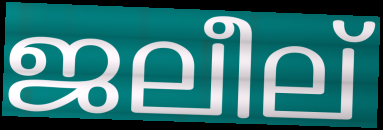
ജലീല്